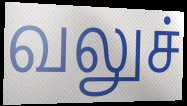
வலுச்